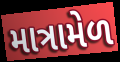
માત્રામેળ